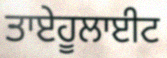
ਤਾਏਹੂਲਾਈਟ